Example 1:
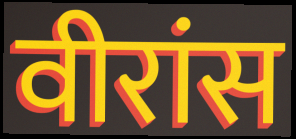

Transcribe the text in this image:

वीरांस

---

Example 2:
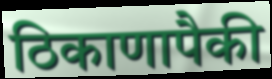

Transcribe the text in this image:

ठिकाणापैकी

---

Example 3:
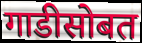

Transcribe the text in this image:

गाडीसोबत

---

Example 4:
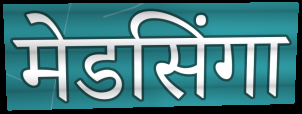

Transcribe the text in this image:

मेडसिंगा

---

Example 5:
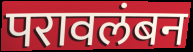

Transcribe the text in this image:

परावलंबन